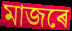
মাজৰে